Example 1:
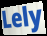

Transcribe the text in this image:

Lely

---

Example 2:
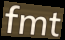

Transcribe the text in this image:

fmt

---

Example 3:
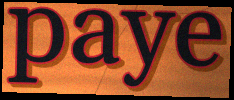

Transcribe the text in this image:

paye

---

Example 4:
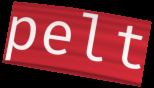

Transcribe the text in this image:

pelt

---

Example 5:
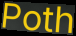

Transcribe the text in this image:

Poth